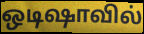
ஒடிஷாவில்